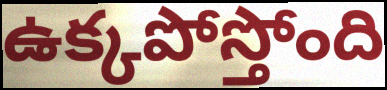
ఉక్కపోస్తోంది